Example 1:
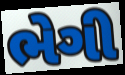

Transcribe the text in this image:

ભેગી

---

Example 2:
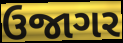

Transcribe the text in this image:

ઉજાગર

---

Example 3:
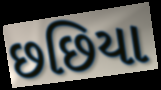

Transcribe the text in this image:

છછિયા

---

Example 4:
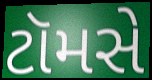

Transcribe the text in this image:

ટૉમસે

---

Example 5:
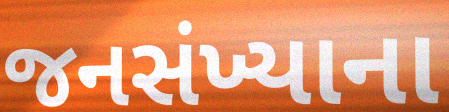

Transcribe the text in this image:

જનસંખ્યાના